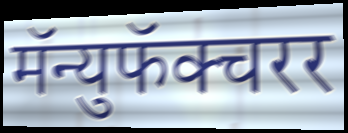
मॅन्युफॅक्चरर